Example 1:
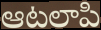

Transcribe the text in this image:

ఆటలాపి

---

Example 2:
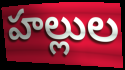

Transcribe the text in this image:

హల్లుల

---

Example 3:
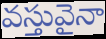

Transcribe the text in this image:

వస్తువైనా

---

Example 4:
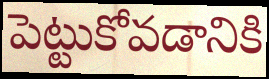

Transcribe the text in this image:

పెట్టుకోవడానికి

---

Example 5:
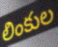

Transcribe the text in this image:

లింకుల